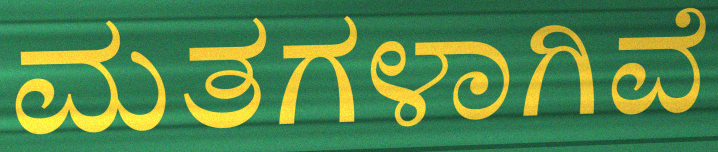
ಮತಗಳಾಗಿವೆ